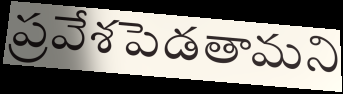
ప్రవేశపెడతామని